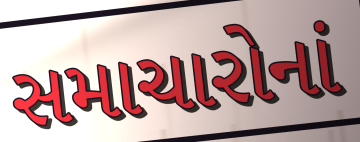
સમાચારોનાં